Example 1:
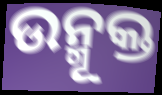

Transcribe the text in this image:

ଉନ୍ମୂକ୍ତ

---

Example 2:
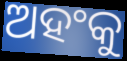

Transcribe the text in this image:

ଅହଂକୁ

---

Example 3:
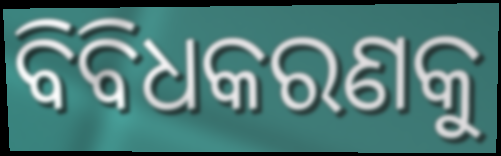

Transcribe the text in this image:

ବିବିଧକରଣକୁ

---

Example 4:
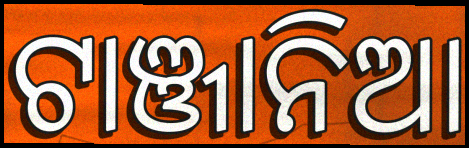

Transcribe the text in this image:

ଟାଞ୍ଜାନିଆ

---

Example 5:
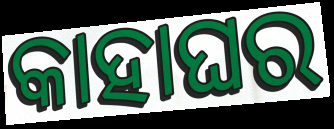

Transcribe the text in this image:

କାହାଘର